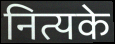
नित्यके